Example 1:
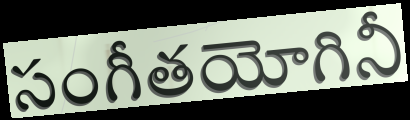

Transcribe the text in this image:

సంగీతయోగినీ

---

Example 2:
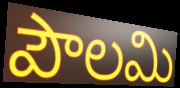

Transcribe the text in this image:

పౌలమి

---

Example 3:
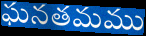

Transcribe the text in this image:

ఘనతమము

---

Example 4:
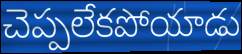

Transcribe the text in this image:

చెప్పలేకపోయాడు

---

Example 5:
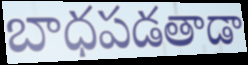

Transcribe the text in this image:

బాధపడతాడా